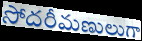
సోదరీమణులుగా